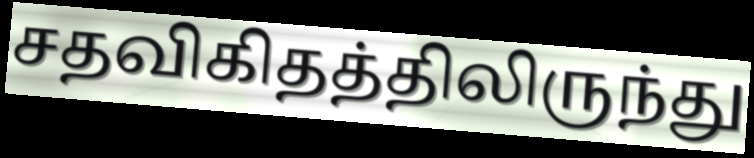
சதவிகிதத்திலிருந்து